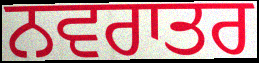
ਨਵਰਾਤਰ